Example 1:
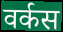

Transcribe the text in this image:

वर्कस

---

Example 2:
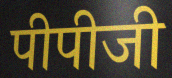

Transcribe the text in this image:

पीपीजी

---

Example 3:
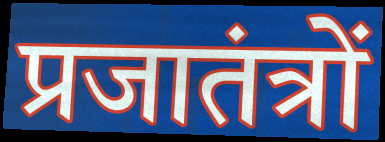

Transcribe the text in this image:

प्रजातंत्रों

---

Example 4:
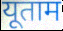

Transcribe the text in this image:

यूताम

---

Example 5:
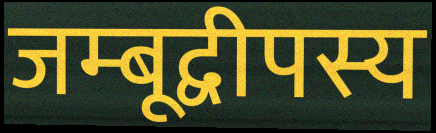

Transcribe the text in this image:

जम्बूद्वीपस्य